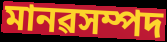
মানৱসম্পদ